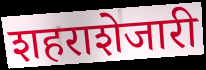
शहराशेजारी